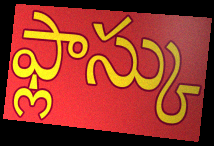
ఫ్లాస్కు